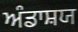
ਅੰਡਾਸ਼ਯ